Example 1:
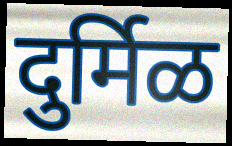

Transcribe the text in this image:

दुर्मिळ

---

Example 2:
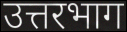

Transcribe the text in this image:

उत्तरभाग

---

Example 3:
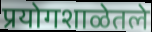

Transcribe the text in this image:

प्रयोगशाळेतले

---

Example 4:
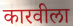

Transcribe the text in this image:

कारवीला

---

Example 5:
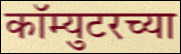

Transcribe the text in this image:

कॉम्युटरच्या